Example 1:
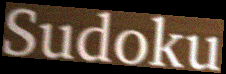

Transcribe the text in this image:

Sudoku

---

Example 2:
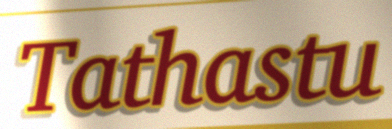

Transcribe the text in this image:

Tathastu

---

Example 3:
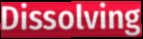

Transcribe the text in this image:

Dissolving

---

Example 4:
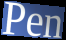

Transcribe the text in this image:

Pen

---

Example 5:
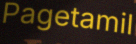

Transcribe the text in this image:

Pagetamil